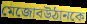
মেজোবউঠানকে